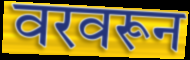
वरवरून